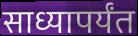
साध्यापर्यंत